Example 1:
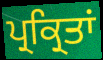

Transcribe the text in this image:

ਪ੍ਰਕ੍ਰਿਤਾਂ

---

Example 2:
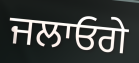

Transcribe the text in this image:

ਜਲਾਓਗੇ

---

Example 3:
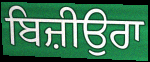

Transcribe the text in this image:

ਬਿਜ਼ੀਉਰਾ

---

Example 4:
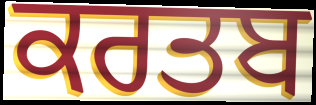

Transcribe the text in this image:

ਕਰਤਬ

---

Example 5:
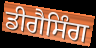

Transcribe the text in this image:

ਡੀਗੈਸਿੰਗ